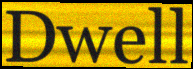
Dwell